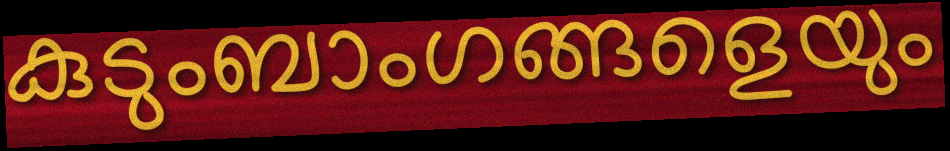
കുടുംബാംഗങ്ങളെയും